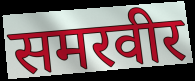
समरवीर